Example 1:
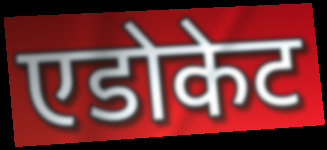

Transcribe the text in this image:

एडोकेट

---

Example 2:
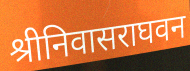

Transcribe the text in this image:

श्रीनिवासराघवन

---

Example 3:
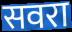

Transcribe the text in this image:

सवरा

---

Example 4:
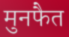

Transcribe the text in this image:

मुनफैत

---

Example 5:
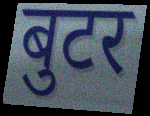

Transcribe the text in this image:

बुटर